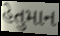
હેતુમાન